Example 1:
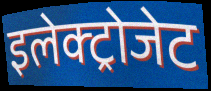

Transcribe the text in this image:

इलेक्ट्रोजेट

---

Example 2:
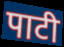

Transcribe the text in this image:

पाटी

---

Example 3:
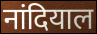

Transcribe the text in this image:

नांदियाल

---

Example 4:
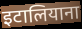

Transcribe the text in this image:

इटालियाना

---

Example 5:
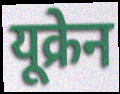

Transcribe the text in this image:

यूक्रेन